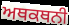
ਅਥਕਥਨੀ